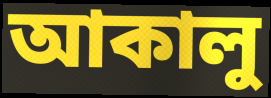
আকালু